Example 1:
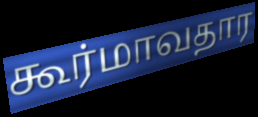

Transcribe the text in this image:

கூர்மாவதார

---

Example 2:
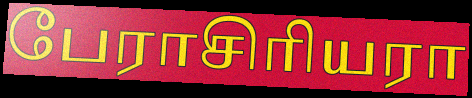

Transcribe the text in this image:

பேராசிரியரா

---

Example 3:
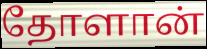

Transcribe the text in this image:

தோளான்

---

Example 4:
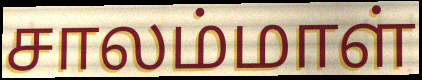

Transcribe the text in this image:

சாலம்மாள்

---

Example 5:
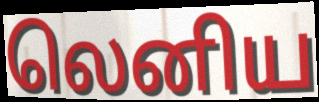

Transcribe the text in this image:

லெனிய